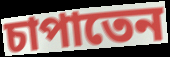
চাপাতেন